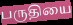
பருதியை